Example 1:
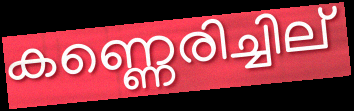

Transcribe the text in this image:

കണ്ണെരിച്ചില്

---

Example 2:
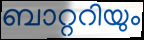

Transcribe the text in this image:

ബാറ്ററിയും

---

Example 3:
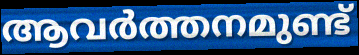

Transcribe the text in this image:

ആവർത്തനമുണ്ട്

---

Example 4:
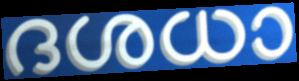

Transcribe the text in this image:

ദശധാ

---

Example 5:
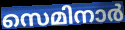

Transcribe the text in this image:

സെമിനാർ